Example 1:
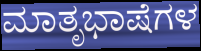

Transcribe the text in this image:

ಮಾತೃಭಾಷೆಗಳ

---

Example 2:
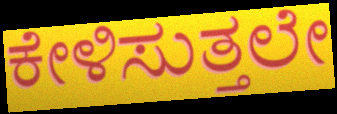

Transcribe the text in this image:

ಕೇಳಿಸುತ್ತಲೇ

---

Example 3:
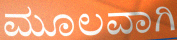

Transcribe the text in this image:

ಮೂಲವಾಗಿ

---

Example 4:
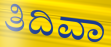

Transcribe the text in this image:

ತಿದಿವಾ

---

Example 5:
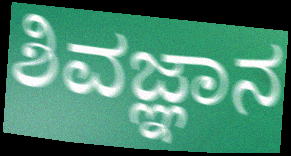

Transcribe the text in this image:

ಶಿವಜ್ಞಾನ